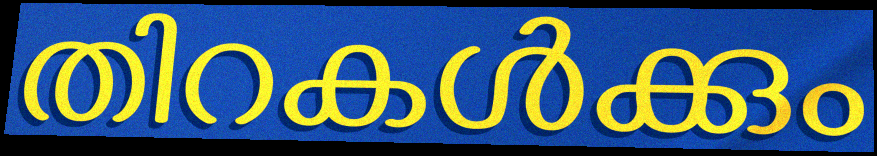
തിറകൾക്കും